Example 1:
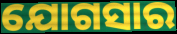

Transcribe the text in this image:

ଯୋଗସାର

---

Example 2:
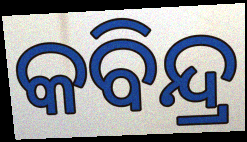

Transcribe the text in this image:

କବିନ୍ଦ୍ର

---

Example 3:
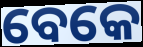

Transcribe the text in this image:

ବେକେ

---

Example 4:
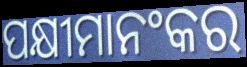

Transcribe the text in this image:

ପକ୍ଷୀମାନଂକର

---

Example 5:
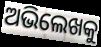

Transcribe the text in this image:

ଅଭିଲେଖକୁ